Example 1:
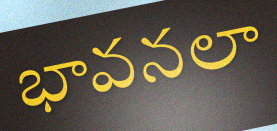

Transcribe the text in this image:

భావనలా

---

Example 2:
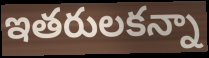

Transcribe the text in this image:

ఇతరులకన్నా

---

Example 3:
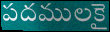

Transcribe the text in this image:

పదములకై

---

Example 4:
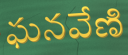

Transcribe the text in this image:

ఘనవేణి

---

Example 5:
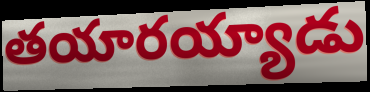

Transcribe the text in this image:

తయారయ్యాడు